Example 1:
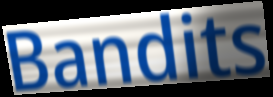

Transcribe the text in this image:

Bandits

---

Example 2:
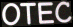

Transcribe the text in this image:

OTEC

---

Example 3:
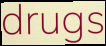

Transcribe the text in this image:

drugs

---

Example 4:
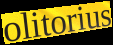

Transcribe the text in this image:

olitorius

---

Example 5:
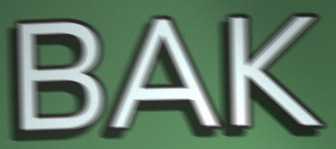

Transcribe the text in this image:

BAK